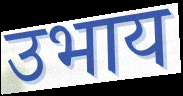
उभाय